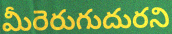
మీరెరుగుదురని